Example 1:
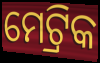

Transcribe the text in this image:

ମେଟ୍ରିକ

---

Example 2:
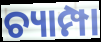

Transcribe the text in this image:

ଚ୍ୟାମ୍ପା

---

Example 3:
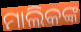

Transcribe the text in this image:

ମାଲିକଙ୍କ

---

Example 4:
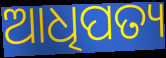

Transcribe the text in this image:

ଆଧିପତ୍ୟ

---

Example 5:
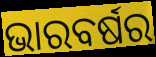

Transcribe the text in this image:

ଭାରବର୍ଷର